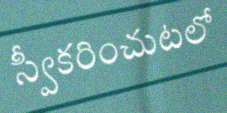
స్వీకరించుటలో